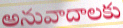
అనువాదాలకు